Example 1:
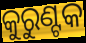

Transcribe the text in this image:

କୁରୁଣ୍ଟକ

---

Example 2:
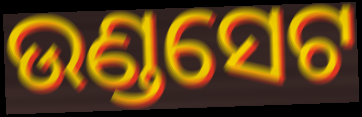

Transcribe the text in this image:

ଉଣ୍ଡସେଟ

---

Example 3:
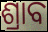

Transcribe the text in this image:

ଶ୍ରାବ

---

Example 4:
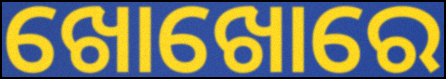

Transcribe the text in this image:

ଖୋଖୋରେ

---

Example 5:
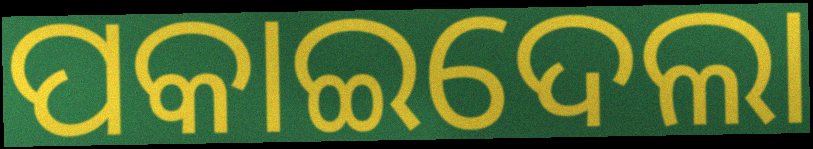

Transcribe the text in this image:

ପକାଇଦେଲା